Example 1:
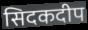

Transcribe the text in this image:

सिदकदीप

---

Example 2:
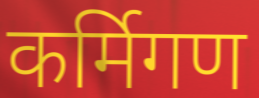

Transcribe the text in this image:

कर्मिगण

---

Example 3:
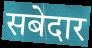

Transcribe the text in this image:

सबेदार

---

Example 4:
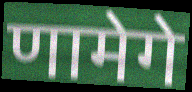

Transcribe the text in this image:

णामेगे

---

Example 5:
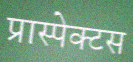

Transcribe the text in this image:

प्रास्पेक्टस